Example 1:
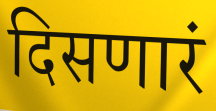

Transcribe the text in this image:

दिसणारं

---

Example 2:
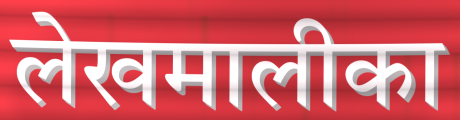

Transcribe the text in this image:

लेखमालीका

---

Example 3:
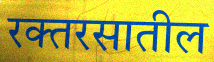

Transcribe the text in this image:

रक्तरसातील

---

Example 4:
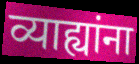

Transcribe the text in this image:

व्याह्यांना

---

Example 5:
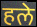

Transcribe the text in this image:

हले